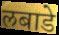
लबाडे